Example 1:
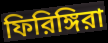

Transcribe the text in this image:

ফিরিঙ্গিরা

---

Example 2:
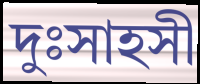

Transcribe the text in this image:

দুঃসাহসী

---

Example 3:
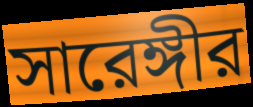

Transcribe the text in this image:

সারেঙ্গীর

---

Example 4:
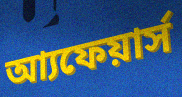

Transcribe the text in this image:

আ্যফেয়ার্স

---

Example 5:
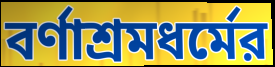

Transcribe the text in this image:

বর্ণাশ্রমধর্মের